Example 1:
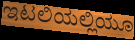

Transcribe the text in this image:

ಇಟಲಿಯಲ್ಲಿಯೂ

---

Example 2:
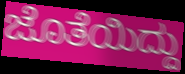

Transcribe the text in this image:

ಜೊತೆಯಿದ್ದು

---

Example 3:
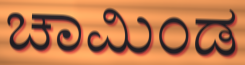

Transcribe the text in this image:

ಚಾಮಿಂಡ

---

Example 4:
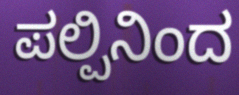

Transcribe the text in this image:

ಪಲ್ಪಿನಿಂದ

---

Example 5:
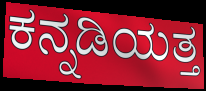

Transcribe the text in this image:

ಕನ್ನಡಿಯತ್ತ